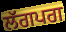
ਲੱਗਪਗ